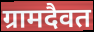
ग्रामदैवत